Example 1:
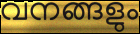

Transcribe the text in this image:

വനങ്ങളും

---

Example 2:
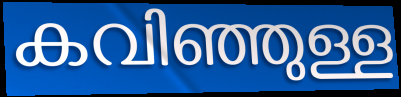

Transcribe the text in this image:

കവിഞ്ഞുള്ള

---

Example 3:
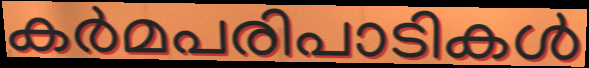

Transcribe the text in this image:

കർമപരിപാടികൾ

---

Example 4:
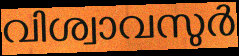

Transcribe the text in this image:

വിശ്വാവസുർ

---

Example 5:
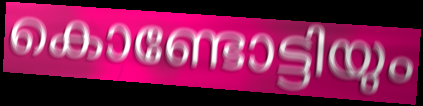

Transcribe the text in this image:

കൊണ്ടോട്ടിയും